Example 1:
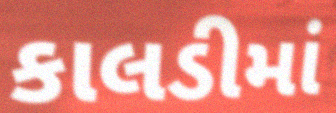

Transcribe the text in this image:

કાલડીમાં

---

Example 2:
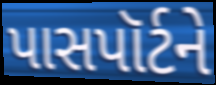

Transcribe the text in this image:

પાસપૉર્ટને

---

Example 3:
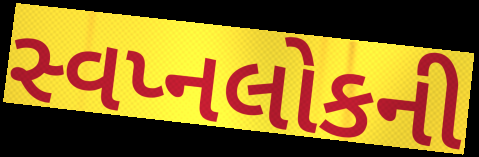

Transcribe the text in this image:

સ્વપ્નલોકની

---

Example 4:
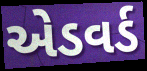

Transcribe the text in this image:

એડવર્ડ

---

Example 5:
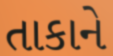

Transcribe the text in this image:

તાકાને